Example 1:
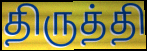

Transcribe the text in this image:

திருத்தி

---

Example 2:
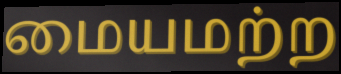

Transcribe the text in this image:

மையமற்ற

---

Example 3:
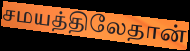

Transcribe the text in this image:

சமயத்திலேதான்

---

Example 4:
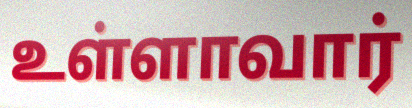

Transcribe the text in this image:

உள்ளாவார்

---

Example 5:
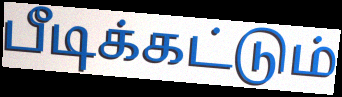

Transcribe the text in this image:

பீடிக்கட்டும்